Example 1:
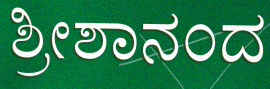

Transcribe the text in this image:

ಶ್ರೀಶಾನಂದ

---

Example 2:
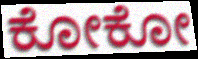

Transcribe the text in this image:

ಕೋಕೋ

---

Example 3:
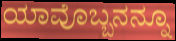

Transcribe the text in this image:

ಯಾವೊಬ್ಬನನ್ನೂ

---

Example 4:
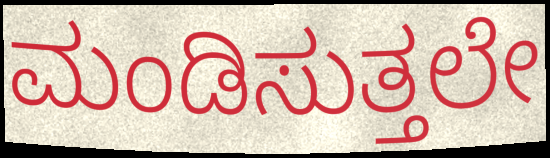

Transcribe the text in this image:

ಮಂಡಿಸುತ್ತಲೇ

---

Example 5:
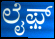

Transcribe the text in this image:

ಲೈಫ಼್